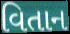
વિતાન